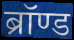
ब्रॉण्ड